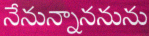
నేనున్నాననును